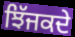
ਝਿੱਜਕਦੇ